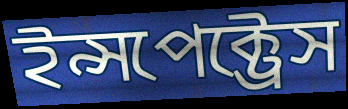
ইন্সপেক্ট্রেস